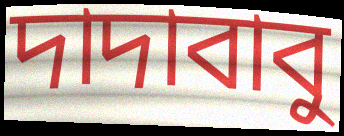
দাদাবাবু